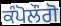
ਕੰਪੋਲੌਗੋ